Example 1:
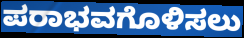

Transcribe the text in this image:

ಪರಾಭವಗೊಳಿಸಲು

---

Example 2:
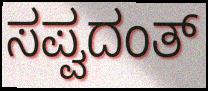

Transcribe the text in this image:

ಸಪ್ವದಂತ್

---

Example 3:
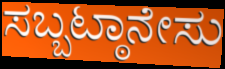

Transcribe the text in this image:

ಸಬ್ಬಟ್ಠಾನೇಸು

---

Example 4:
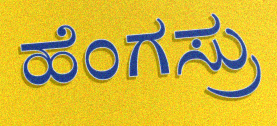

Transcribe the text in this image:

ಹೆಂಗಸ್ರು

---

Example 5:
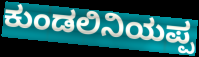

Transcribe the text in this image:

ಕುಂಡಲಿನಿಯಪ್ಪ